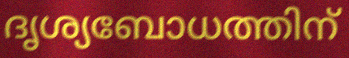
ദൃശ്യബോധത്തിന്